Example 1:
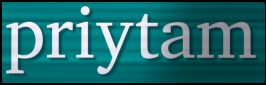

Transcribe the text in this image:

priytam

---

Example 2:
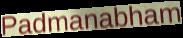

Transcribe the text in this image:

Padmanabham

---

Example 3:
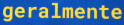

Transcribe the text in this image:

geralmente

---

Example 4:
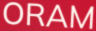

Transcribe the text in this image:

ORAM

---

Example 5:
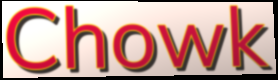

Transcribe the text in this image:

Chowk